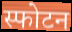
स्फोटन